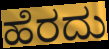
ಹೆರದು